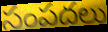
సంపదలు